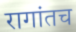
रागांतच